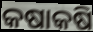
କଷାକଷି